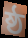
ষ্ঠ